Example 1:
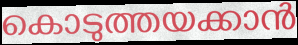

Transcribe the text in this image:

കൊടുത്തയക്കാൻ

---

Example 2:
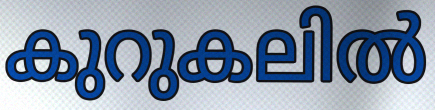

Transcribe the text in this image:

കുറുകലിൽ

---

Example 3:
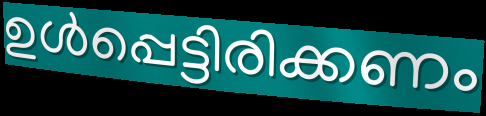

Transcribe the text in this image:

ഉൾപ്പെട്ടിരിക്കണം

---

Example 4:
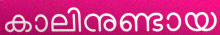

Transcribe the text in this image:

കാലിനുണ്ടായ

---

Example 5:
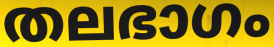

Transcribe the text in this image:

തലഭാഗം